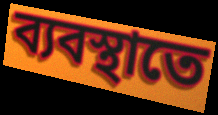
ব্যবস্থাতে